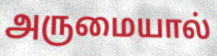
அருமையால்